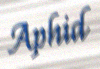
Aphid